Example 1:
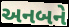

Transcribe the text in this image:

અનબને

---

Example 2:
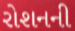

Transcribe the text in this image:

રોશનની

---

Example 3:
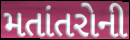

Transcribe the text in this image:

મતાંતરોની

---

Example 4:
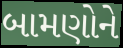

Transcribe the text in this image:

બામણોને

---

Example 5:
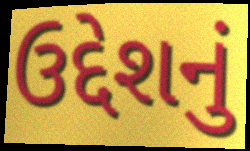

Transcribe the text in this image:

ઉદ્દેશનું